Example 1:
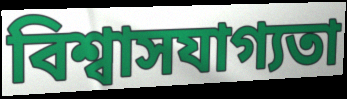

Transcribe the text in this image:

বিশ্বাসযাগ্যতা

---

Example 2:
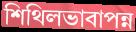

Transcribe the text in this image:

শিথিলভাবাপন্ন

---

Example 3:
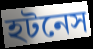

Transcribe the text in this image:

হটনেস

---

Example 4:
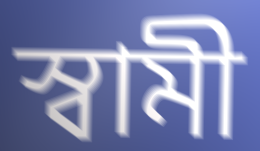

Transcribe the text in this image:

স্বামী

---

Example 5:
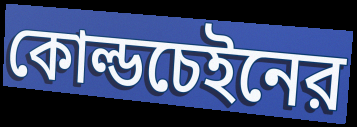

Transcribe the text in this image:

কোল্ডচেইনের